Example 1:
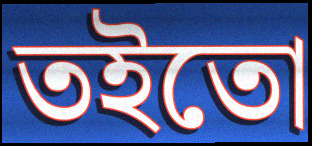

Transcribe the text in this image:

তইতো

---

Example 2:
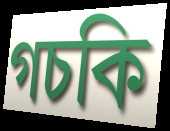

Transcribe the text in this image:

গচকি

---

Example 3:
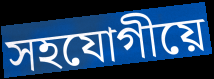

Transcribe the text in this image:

সহযোগীয়ে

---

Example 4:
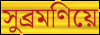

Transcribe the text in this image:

সুব্ৰমণিয়ে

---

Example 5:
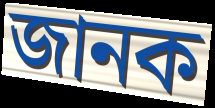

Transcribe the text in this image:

জানক